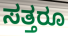
ಸತ್ತರೂ